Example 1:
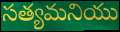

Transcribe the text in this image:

సత్యమనియు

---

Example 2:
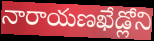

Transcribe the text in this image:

నారాయణఖేడ్లోని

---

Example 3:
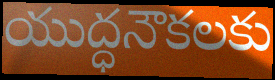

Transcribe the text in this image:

యుద్ధనౌకలకు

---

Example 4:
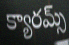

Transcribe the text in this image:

క్యారమ్స్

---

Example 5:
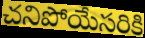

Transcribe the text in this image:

చనిపోయేసరికి